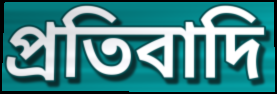
প্রতিবাদি